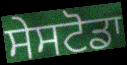
ਸੇਸਟੋਡਾ